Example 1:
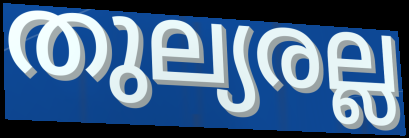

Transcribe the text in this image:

തുല്യരല്ല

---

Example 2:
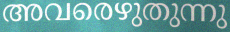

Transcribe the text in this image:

അവരെഴുതുന്നു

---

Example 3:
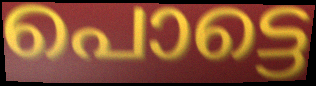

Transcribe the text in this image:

പൊട്ടെ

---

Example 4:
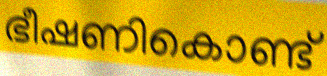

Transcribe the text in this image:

ഭീഷണികൊണ്ട്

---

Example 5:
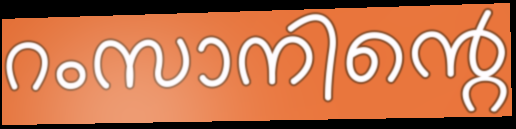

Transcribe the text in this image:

റംസാനിന്റെ